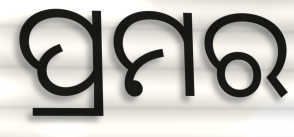
ପ୍ରମର